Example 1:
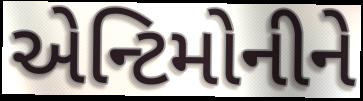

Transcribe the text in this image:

એન્ટિમોનીને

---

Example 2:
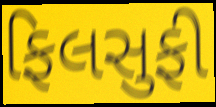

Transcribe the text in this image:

ફિલસુફી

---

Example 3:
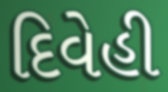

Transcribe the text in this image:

દિવેહી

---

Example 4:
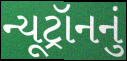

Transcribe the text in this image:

ન્યૂટ્રૉનનું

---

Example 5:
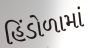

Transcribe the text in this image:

હિંડોળામાં